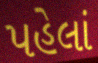
પહેલાં